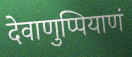
देवाणुप्पियाणं